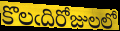
కొలఁదిరోజులలో